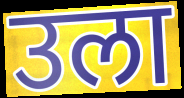
उला